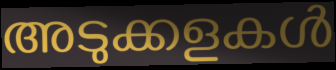
അടുക്കളകൾ